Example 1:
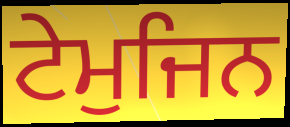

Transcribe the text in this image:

ਟੇਮੁਜਿਨ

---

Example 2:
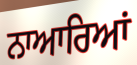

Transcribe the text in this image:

ਨਾਆਰਿਆਂ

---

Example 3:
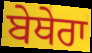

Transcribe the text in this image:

ਬੇਥੇਰਾ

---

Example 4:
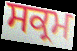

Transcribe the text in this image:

ਸਕ੍ਰਮ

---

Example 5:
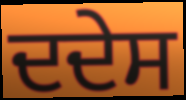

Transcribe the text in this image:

ਦਦੇਸ